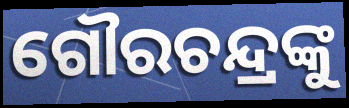
ଗୌରଚନ୍ଦ୍ରଙ୍କୁ